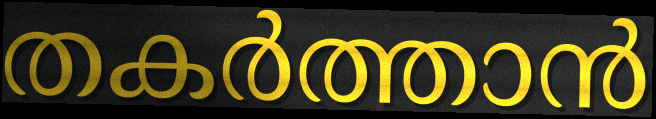
തകർത്താൻ